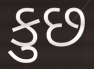
કુછ